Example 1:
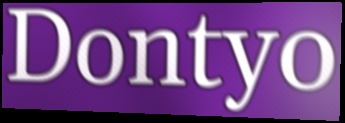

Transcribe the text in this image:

Dontyo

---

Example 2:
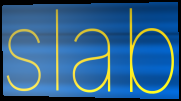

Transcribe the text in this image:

slab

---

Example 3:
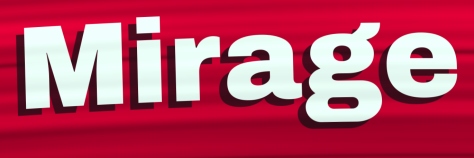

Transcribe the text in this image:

Mirage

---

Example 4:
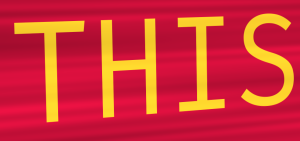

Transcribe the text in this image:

THIS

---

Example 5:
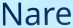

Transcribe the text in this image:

Nare